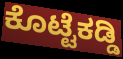
ಕೊಟ್ಟೆಕಡ್ಡಿ